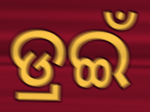
ଡ୍ରଇଁ